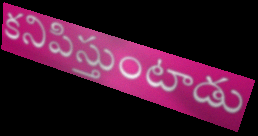
కనిపిస్తుంటాడు